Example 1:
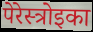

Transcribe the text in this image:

पेरेस्त्रोइका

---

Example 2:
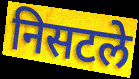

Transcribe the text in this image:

निसटले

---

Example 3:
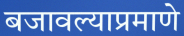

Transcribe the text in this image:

बजावल्याप्रमाणे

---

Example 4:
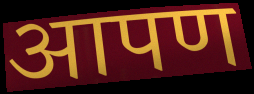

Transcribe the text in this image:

आपण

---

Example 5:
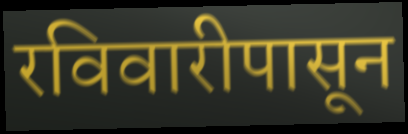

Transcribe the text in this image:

रविवारीपासून